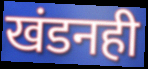
खंडनही